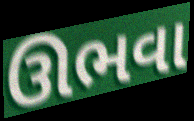
ઊભવા